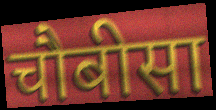
चौबीसा